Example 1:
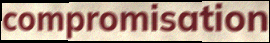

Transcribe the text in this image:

compromisation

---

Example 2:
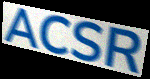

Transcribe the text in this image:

ACSR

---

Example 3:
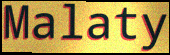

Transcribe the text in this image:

Malaty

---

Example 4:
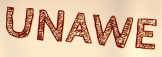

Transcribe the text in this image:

UNAWE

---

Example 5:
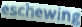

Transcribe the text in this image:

eschewing